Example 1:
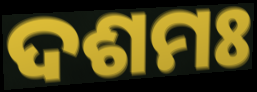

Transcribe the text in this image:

ଦଶମଃ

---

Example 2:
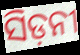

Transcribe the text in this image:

ସିଡ଼ନୀ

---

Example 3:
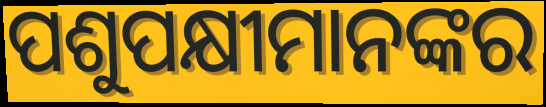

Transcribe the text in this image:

ପଶୁପକ୍ଷୀମାନଙ୍କର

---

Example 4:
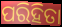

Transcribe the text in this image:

ପରିହିତା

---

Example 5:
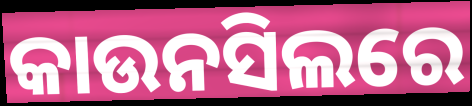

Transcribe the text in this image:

କାଉନସିଲରେ